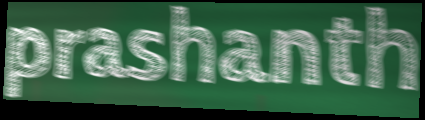
prashanth